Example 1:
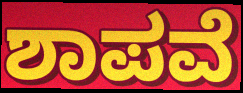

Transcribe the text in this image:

ಶಾಪವೆ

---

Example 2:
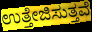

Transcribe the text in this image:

ಉತ್ತೇಜಿಸುತ್ತವೆ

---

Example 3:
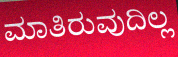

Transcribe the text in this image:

ಮಾತಿರುವುದಿಲ್ಲ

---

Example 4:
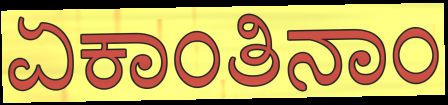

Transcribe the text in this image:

ಏಕಾಂತಿನಾಂ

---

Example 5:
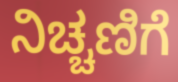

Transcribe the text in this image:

ನಿಚ್ಚಣಿಗೆ